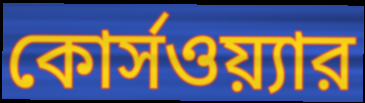
কোর্সওয়্যার